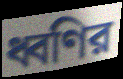
ধ্বণির